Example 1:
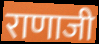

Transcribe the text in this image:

राणाजी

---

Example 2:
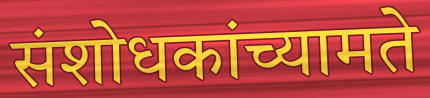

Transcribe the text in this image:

संशोधकांच्यामते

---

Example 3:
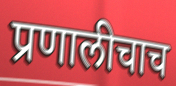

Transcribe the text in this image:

प्रणालीचाच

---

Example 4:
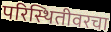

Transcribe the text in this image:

परिस्थितीवरचा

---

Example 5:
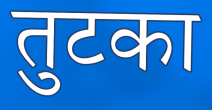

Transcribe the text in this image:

तुटका